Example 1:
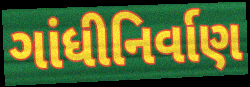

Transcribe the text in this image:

ગાંધીનિર્વાણ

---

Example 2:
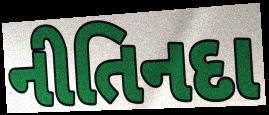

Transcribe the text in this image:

નીતિનદા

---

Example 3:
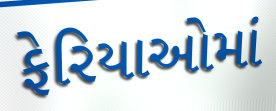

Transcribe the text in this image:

ફેરિયાઓમાં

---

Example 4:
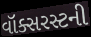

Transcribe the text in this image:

વૉક્સરસ્ટની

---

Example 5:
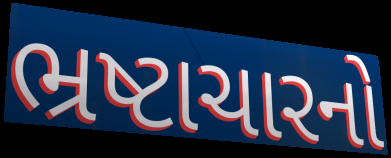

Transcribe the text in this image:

ભ્રષ્ટાચારનો